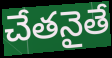
చేతనైతే